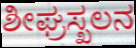
ಶೀಘ್ರಸ್ಖಲನ